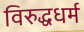
विरुद्धधर्म